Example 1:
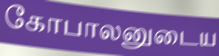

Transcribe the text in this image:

கோபாலனுடைய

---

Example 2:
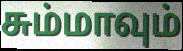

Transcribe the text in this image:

சும்மாவும்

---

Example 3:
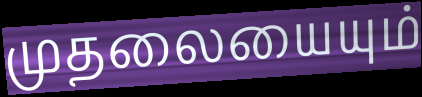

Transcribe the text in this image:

முதலையையும்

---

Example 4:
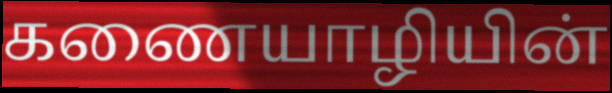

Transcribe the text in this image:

கணையாழியின்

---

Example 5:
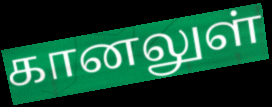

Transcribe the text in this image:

கானலுள்